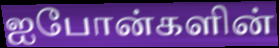
ஐபோன்களின்